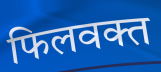
फिलवक्‍त